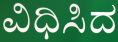
ವಿಧಿಸಿದ